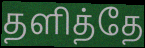
தளித்தே